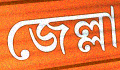
জেল্লা